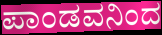
ಪಾಂಡವನಿಂದ